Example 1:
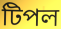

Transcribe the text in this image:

টিপল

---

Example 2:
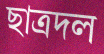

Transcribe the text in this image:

ছাত্রদল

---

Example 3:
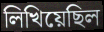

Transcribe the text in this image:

লিখিয়েছিল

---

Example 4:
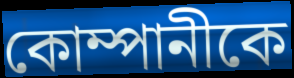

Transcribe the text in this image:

কোম্পানীকে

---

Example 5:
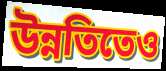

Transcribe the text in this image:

উন্নতিতেও